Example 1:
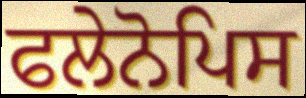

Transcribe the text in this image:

ਫਲੇਨੋਪਿਸ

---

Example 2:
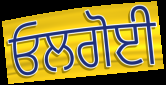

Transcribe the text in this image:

ਓਲਗੋਈ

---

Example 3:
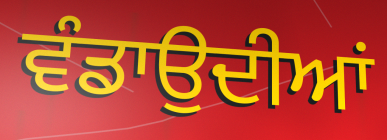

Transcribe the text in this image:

ਵੰਡਾਉਦੀਆਂ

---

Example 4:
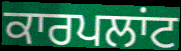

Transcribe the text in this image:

ਕਾਰਪਲਾਂਟ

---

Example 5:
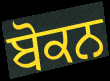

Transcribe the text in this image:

ਬੋਕਨ